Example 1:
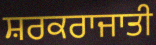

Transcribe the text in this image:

ਸ਼ਰਕਰਾਜਾਤੀ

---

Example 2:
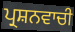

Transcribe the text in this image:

ਪ੍ਰਸ਼ਨਵਾਚੀ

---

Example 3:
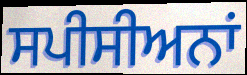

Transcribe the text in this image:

ਸਪੀਸੀਅਨਾਂ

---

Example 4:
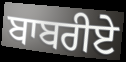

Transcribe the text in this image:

ਬਾਬਰੀਏ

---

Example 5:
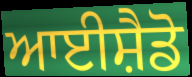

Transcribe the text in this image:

ਆਈਸ਼ੈਡੋ